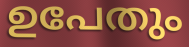
ഉപേതും